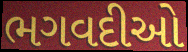
ભગવદીઓ